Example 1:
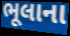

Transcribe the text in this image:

ભૂલાના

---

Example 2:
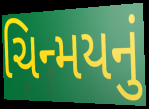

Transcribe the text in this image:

ચિન્મયનું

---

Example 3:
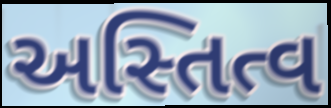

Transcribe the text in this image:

અસ્તિત્વ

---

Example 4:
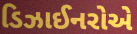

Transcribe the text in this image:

ડિઝાઈનરોએ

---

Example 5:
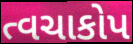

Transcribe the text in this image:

ત્વચાકોપ